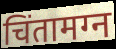
चिंतामग्न